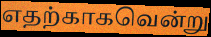
எதற்காகவென்று